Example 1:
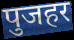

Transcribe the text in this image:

पुजहर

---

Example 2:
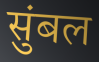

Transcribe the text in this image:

सुंबल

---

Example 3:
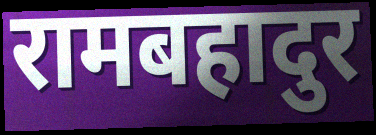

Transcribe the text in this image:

रामबहादुर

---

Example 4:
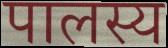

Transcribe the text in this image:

पालस्य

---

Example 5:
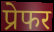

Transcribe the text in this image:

प्रेफर